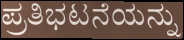
ಪ್ರತಿಭಟನೆಯನ್ನು